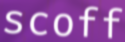
scoff